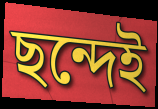
ছন্দেই